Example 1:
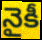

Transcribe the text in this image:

నైకీ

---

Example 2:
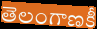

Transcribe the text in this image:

తెలంగాణకీ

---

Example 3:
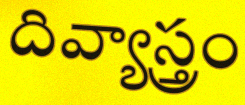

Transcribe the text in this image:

దివ్యాస్త్రం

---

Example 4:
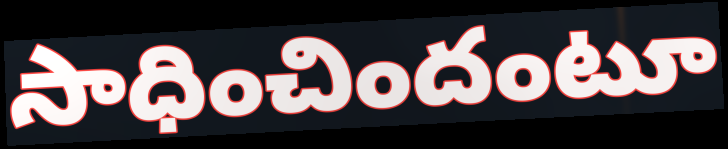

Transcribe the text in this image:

సాధించిందంటూ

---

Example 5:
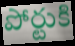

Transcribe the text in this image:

పోర్టుకి